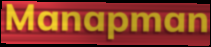
Manapman